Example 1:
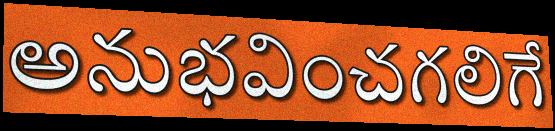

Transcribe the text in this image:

అనుభవించగలిగే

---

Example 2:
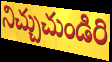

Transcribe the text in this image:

నిచ్చుచుండిరి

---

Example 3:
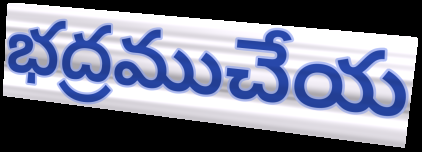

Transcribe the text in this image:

భద్రముచేయ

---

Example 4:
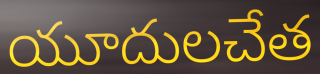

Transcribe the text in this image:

యూదులచేత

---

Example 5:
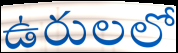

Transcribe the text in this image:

ఉరులలో